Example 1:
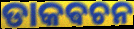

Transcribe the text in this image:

ଡାକଵଚନ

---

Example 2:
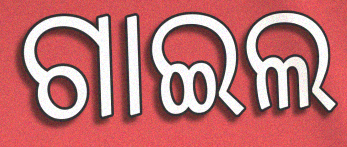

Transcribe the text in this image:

ଗାଇଲ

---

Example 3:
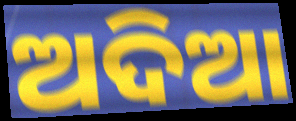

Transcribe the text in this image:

ଅଦିଆ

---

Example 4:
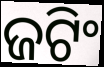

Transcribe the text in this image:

ଜଟିଂ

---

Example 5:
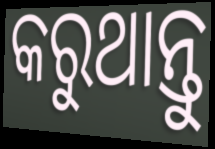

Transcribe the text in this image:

କରୁଥାନ୍ତୁ